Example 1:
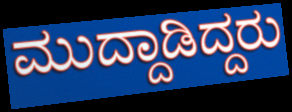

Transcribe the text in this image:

ಮುದ್ದಾಡಿದ್ದರು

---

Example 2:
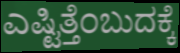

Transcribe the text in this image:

ಎಷ್ಟಿತ್ತೆಂಬುದಕ್ಕೆ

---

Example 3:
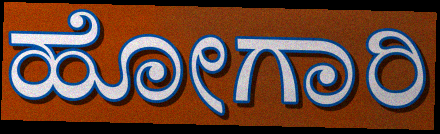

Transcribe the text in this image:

ಹೋಗಾರಿ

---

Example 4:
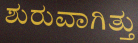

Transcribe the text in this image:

ಶುರುವಾಗಿತ್ತು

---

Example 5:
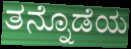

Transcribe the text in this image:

ತನ್ನೊಡೆಯ